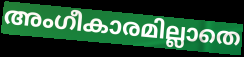
അംഗീകാരമില്ലാതെ